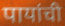
पायांची